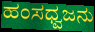
ಹಂಸಧ್ವಜನು